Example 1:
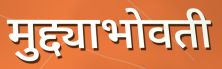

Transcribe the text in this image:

मुद्द्याभोवती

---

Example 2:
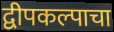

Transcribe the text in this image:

द्वीपकल्पाचा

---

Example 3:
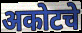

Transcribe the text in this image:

अकोटचे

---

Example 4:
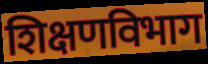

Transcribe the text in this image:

शिक्षणविभाग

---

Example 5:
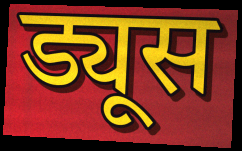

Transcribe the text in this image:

ड्यूस